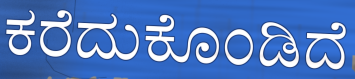
ಕರೆದುಕೊಂಡಿದೆ